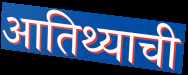
आतिथ्याची